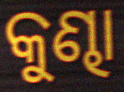
କୁଣ୍ଢା